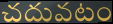
చదువటం